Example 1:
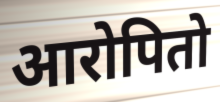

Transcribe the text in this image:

आरोपितो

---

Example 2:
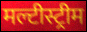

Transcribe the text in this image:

मल्टीस्ट्रीम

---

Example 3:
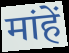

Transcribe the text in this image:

मांहें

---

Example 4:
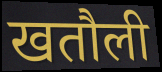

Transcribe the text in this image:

खतौली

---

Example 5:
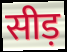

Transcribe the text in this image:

सीड़